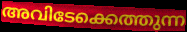
അവിടേക്കെത്തുന്ന